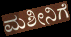
ಮಶೀನಿಗೆ